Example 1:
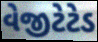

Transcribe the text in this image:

વેજીટેટેડ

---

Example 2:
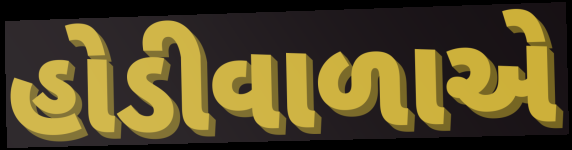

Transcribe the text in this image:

હોડીવાળાએ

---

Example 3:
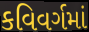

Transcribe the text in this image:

કવિવર્ગમાં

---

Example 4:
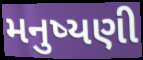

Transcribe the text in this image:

મનુષ્યણી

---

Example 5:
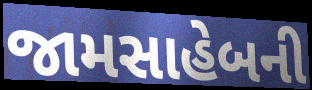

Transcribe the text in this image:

જામસાહેબની